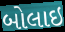
બોલાઇ